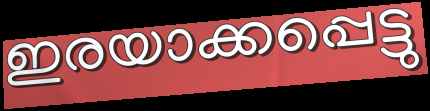
ഇരയാക്കപ്പെട്ടു